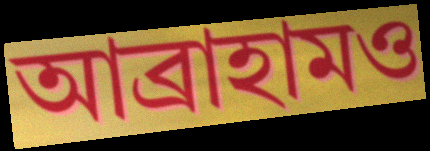
আব্রাহামও